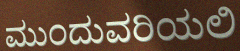
ಮುಂದುವರಿಯಲಿ